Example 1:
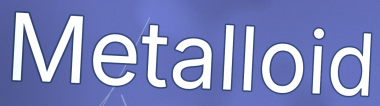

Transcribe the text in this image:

Metalloid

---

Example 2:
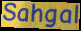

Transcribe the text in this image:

Sahgal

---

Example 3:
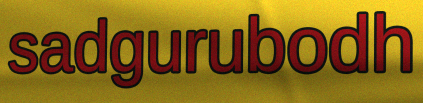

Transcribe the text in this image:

sadgurubodh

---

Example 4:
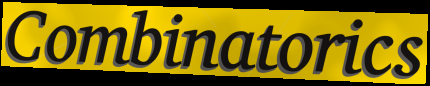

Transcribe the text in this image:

Combinatorics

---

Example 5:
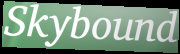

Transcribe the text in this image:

Skybound